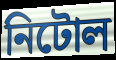
নিটোল